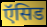
ऍसिड